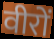
वीरों